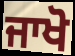
ਜਾਖੋ